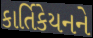
કાર્તિકેયનને